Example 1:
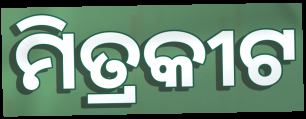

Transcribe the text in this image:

ମିତ୍ରକୀଟ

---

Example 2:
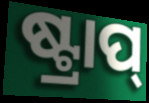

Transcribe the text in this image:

ଷ୍ଟ୍ରାପ୍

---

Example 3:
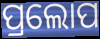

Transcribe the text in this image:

ପ୍ରଲୋପ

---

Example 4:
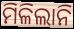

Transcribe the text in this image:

ମିଳିଲାନି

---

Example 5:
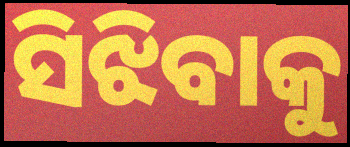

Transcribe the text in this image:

ସିଝିବାକୁ